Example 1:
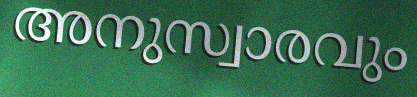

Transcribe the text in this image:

അനുസ്വാരവും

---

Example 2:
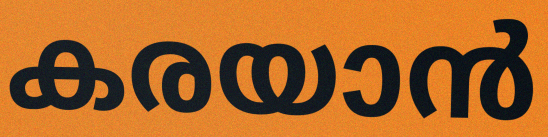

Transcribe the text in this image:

കരയാൻ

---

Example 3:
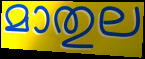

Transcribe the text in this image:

മാതുല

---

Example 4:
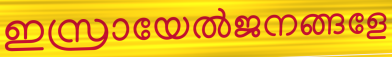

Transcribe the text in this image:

ഇസ്രായേൽജനങ്ങളേ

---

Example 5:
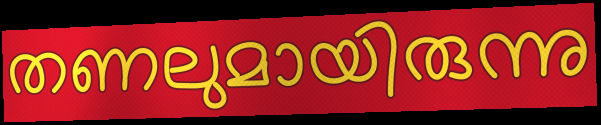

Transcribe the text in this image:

തണലുമായിരുന്നു